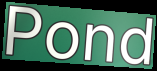
Pond